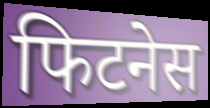
फिटनेस